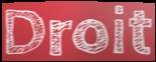
Droit